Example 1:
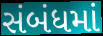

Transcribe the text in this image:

સંબંધમાં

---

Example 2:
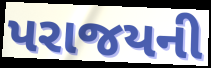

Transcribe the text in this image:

પરાજયની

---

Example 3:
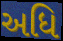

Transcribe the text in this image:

અધિ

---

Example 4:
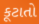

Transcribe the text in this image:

કૂટાતો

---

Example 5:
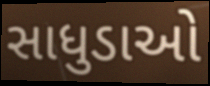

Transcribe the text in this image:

સાધુડાઓ